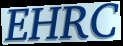
EHRC